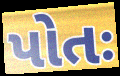
પોતઃ